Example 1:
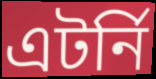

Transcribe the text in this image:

এটর্নি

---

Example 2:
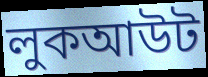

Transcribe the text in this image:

লুকআউট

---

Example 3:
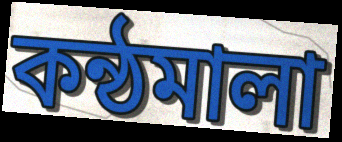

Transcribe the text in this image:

কন্ঠমালা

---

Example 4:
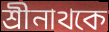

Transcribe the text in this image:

শ্রীনাথকে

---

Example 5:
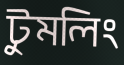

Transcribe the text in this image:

টুমলিং